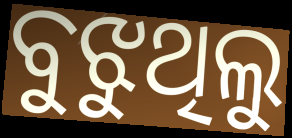
ବୁଝୁଥିଲୁ